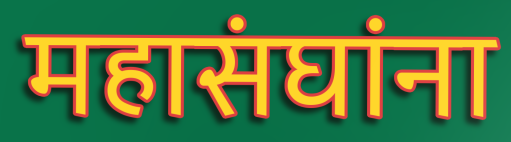
महासंघांना